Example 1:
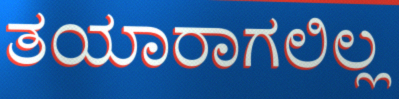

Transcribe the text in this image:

ತಯಾರಾಗಲಿಲ್ಲ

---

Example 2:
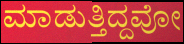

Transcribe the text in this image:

ಮಾಡುತ್ತಿದ್ದವೋ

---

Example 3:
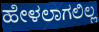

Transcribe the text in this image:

ಹೇಳಲಾಗಲಿಲ್ಲ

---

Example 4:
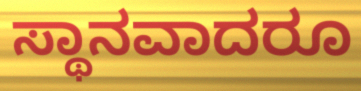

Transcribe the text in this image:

ಸ್ಥಾನವಾದರೂ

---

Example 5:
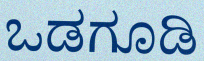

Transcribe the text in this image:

ಒಡಗೂಡಿ